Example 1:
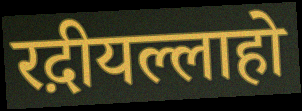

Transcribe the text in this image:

रद़ीयल्लाहो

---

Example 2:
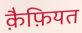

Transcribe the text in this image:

क़ैफ़ियत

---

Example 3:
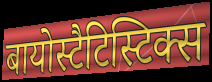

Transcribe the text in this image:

बायोस्टैटिस्टिक्स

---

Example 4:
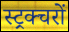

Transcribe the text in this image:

स्ट्रक्चरों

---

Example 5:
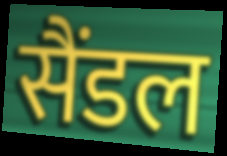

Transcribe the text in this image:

सैंडल